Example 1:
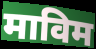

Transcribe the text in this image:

माविम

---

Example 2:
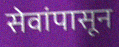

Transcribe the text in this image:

सेवांपासून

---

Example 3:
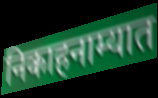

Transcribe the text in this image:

निकाहनाम्यात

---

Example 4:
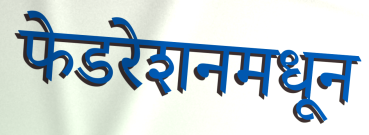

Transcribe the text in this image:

फेडरेशनमधून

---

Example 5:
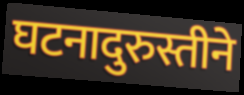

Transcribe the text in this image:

घटनादुरुस्तीने